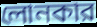
লোনকার